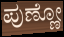
ಪುಣ್ಣೋ